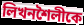
লিখনশৈলীকে